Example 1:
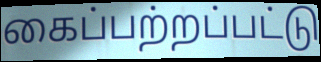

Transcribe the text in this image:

கைப்பற்றப்பட்டு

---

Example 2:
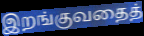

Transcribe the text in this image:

இறங்குவதைத்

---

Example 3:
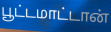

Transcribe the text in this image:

பூட்டமாட்டான்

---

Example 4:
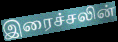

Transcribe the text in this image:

இரைச்சலின்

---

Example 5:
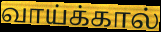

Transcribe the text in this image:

வாய்க்கால்